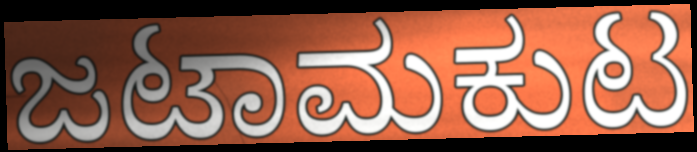
ಜಟಾಮಕುಟ